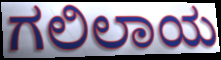
ಗಲಿಲಾಯ